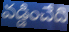
వడ్డించేది